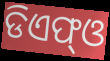
ଡିଏଫ୍ଓ